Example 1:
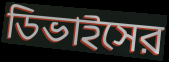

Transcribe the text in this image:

ডিভাইসের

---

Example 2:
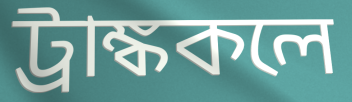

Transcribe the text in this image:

ট্রাঙ্ককলে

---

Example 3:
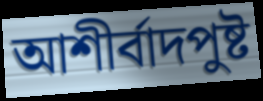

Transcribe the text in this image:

আশীর্বাদপুষ্ট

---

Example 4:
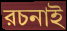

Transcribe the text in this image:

রচনাই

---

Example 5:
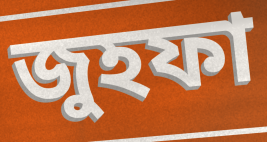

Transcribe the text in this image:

জুহফা